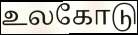
உலகோடு